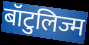
बॉटुलिज्म